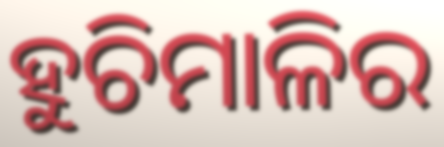
ହୁଚିମାଳିର